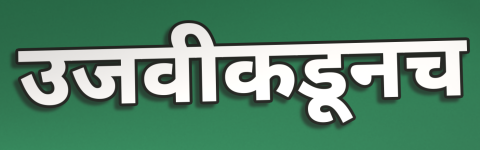
उजवीकडूनच